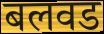
बलवड